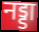
नड्डा